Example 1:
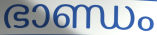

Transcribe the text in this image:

ഭാണ്ഡം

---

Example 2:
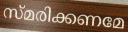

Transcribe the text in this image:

സ്മരിക്കണമേ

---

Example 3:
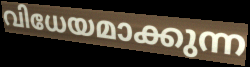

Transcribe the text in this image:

വിധേയമാക്കുന്ന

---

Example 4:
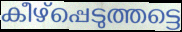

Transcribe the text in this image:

കീഴ്പ്പെടുത്തട്ടെ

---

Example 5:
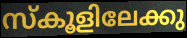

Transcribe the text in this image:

സ്കൂളിലേക്കു